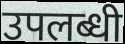
उपलब्धी